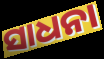
ସାଧନା